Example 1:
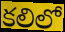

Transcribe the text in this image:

కలిలో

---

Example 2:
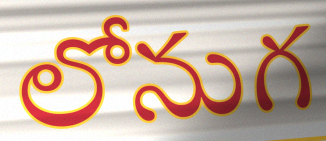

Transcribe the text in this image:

లోనుగ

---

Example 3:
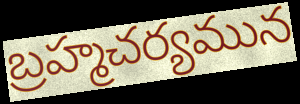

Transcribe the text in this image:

బ్రహ్మచర్యమున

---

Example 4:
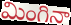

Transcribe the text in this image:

మింగినా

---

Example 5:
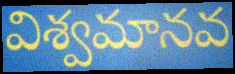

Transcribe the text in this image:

విశ్వమానవ